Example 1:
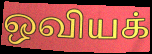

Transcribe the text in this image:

ஒவியக்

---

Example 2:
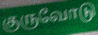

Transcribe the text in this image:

குருவோடு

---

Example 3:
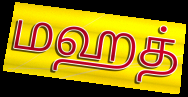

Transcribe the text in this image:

மஹத்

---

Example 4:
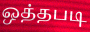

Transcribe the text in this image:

ஒத்தபடி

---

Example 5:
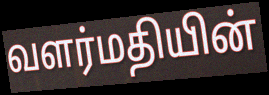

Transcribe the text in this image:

வளர்மதியின்